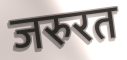
जरुरत